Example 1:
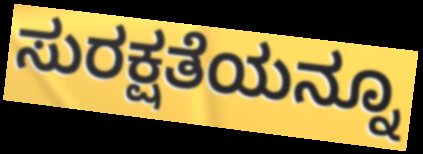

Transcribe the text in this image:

ಸುರಕ್ಷತೆಯನ್ನೂ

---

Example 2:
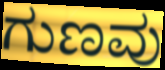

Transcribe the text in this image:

ಗುಣವು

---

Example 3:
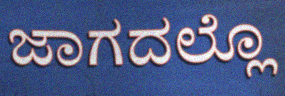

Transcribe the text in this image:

ಜಾಗದಲ್ಲೊ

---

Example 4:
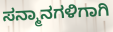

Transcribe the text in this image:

ಸನ್ಮಾನಗಳಿಗಾಗಿ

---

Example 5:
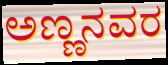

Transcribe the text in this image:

ಅಣ್ಣನವರ